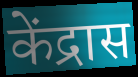
केंद्रास